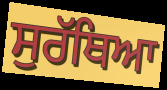
ਸੁਰੱਥਿਆ